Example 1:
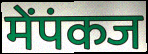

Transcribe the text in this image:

मेंपंकज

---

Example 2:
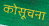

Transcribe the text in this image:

कोसूचना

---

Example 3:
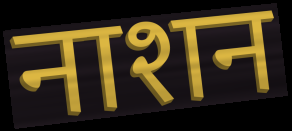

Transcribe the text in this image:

नाशन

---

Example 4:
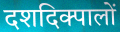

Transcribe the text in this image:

दशदिक्पालों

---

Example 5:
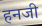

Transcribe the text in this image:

हनजी